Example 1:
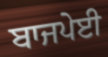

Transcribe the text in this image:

ਬਾਜਪੇਈ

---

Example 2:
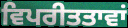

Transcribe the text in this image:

ਵਿਪਰੀਤਤਾਵਾਂ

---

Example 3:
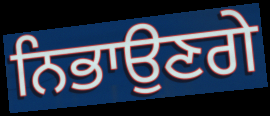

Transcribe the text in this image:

ਨਿਭਾਉਣਗੇ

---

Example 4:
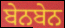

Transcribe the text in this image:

ਬੇਨਬੇਨ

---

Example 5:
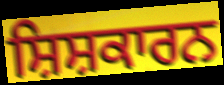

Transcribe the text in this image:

ਸ਼ਿਸ਼ਕਾਰਨ